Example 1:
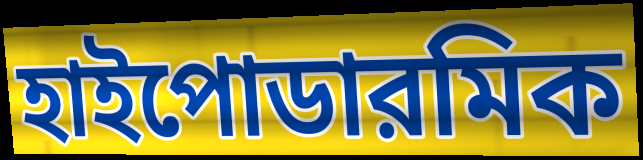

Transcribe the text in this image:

হাইপোডারমিক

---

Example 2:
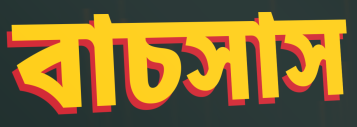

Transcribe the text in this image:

বাচসাস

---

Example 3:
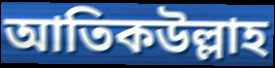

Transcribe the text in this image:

আতিকউল্লাহ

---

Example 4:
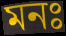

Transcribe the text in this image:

মনঃ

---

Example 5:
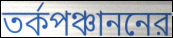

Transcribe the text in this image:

তর্কপঞ্চাননের